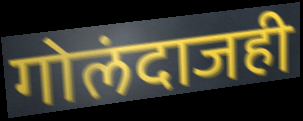
गोलंदाजही